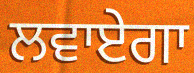
ਲਵਾਏਗਾ